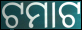
ଟମାଟ